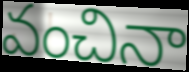
వంచినా